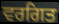
ਵਰਗਿਤ